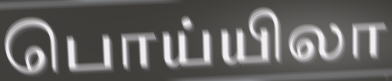
பொய்யிலா